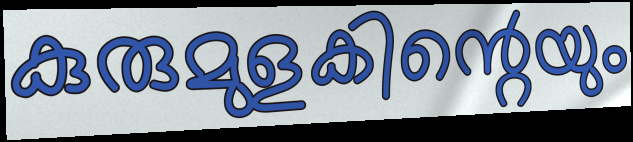
കുരുമുളകിന്റെയും